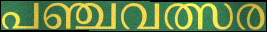
പഞ്ചവത്സര